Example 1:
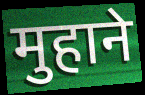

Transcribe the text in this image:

मुहाने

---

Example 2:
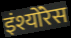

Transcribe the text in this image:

इंश्योंरेस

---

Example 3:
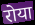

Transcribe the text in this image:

रोया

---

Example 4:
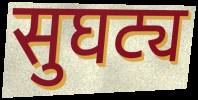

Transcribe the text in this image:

सुघट्य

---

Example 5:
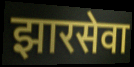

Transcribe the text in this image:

झारसेवा